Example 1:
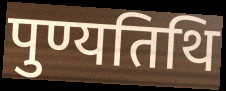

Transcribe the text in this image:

पुण्यतिथि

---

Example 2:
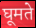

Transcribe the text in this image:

घूमते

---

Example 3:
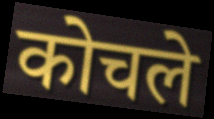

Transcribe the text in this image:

कोचले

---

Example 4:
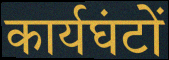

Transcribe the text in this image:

कार्यघंटों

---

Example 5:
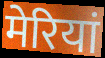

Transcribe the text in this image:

मेरियां